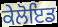
ਕੇਲੋਇਡ